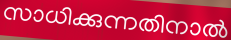
സാധിക്കുന്നതിനാൽ